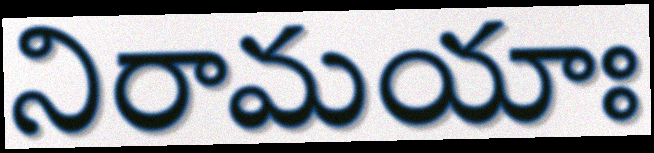
నిరామయాః